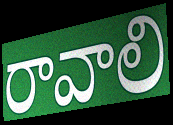
రావాలి